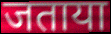
जताया